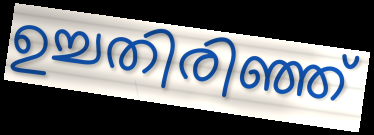
ഉച്ചതിരിഞ്ഞ്